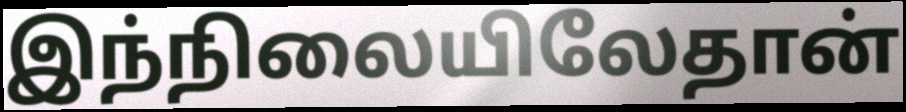
இந்நிலையிலேதான்